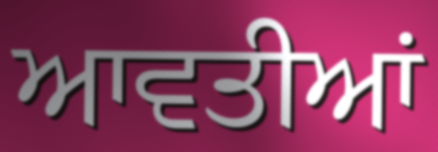
ਆਵਤੀਆਂ